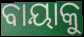
ବାୟାକୁ